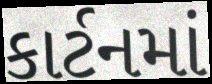
કાર્ટનમાં